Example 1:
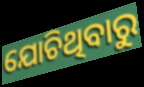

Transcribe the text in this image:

ଯୋଚିଥିବାରୁ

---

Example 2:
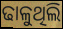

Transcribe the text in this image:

ଢାଳୁଥିଲି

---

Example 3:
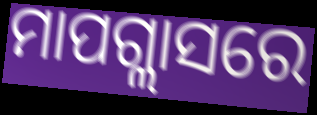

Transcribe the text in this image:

ମାପଗ୍ଲାସରେ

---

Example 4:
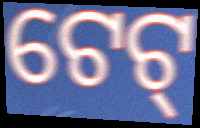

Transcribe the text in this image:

ଟେଟ୍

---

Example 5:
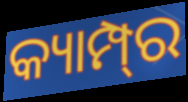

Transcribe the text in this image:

କ୍ୟାମ୍ପ୍‍ର